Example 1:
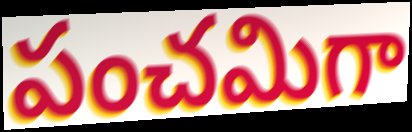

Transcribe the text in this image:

పంచమిగా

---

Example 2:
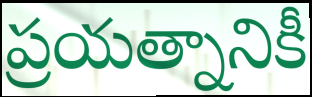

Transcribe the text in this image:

ప్రయత్నానికీ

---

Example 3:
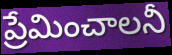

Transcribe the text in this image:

ప్రేమించాలనీ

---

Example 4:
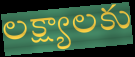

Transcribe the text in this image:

లక్ష్యాలకు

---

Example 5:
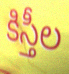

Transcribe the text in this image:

కిస్తీల